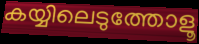
കയ്യിലെടുത്തോളൂ